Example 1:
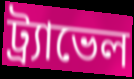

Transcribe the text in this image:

ট্র্যাভেল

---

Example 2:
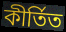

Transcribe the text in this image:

কীর্তিত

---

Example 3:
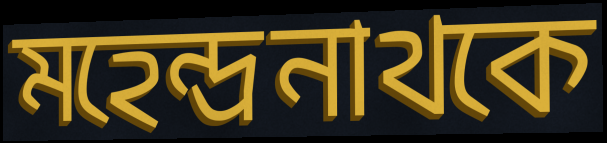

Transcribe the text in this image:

মহেন্দ্রনাথকে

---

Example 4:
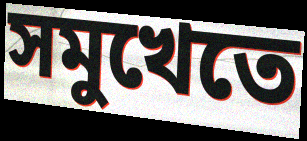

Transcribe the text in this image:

সমুখেতে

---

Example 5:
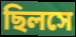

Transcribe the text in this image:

ছিলসে